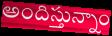
అందిస్తున్నాం